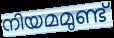
നിയമമുണ്ട്